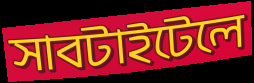
সাবটাইটেলে